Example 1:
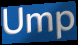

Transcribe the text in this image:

Ump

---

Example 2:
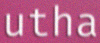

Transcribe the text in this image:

utha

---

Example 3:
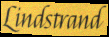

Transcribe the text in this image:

Lindstrand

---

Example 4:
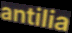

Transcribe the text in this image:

antilia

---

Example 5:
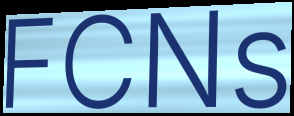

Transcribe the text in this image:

FCNs